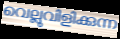
വെല്ലുവിളിക്കുന്ന